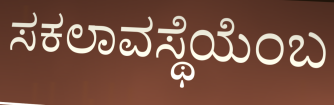
ಸಕಲಾವಸ್ಥೆಯೆಂಬ